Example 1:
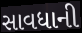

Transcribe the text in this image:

સાવધાની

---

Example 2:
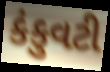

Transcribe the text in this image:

કંકુવટી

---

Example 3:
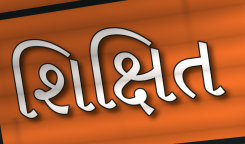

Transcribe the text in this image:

શિક્ષિત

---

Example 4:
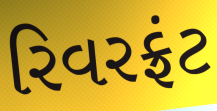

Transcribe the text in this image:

રિવરફ્રંટ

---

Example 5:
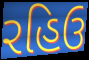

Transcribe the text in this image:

રહિઉ